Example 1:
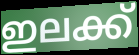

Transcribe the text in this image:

ഇലക്ക്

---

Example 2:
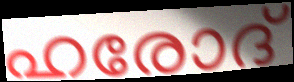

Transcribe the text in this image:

ഹരോദ്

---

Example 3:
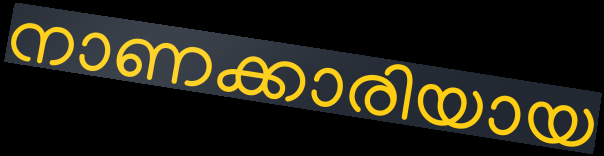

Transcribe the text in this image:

നാണക്കാരിയായ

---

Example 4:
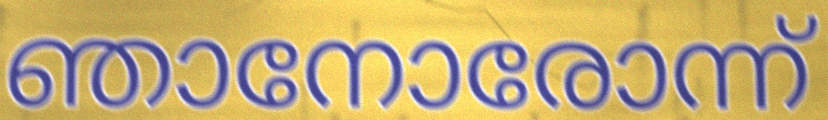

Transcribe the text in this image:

ഞാനോരോന്ന്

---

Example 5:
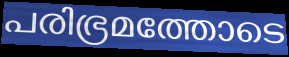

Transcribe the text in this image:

പരിഭ്രമത്തോടെ